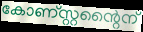
കോണ്സ്റ്റന്റൈന്